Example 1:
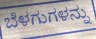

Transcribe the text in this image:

ಬೆಳಗುಗಳನ್ನು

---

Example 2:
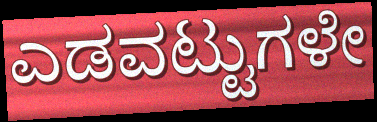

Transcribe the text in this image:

ಎಡವಟ್ಟುಗಳೇ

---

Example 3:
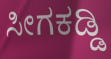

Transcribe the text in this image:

ಸೀಗಕಡ್ಡಿ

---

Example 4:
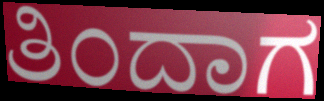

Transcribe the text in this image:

ತಿಂದಾಗ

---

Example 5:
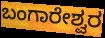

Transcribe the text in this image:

ಬಂಗಾರೇಶ್ವರ